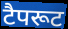
टैपरूट